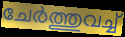
ചേർത്തുവച്ച്